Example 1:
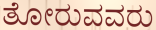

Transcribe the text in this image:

ತೋರುವವರು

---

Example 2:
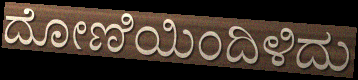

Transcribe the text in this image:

ದೋಣಿಯಿಂದಿಳಿದು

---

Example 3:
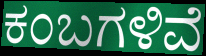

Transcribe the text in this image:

ಕಂಬಗಳಿವೆ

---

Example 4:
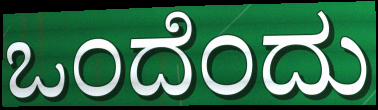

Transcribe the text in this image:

ಒಂದೆಂದು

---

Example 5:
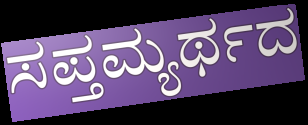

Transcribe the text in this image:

ಸಪ್ತಮ್ಯರ್ಥದ